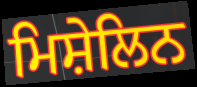
ਮਿਸ਼ੇਲਿਨ